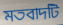
মতবাদটি